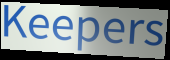
Keepers